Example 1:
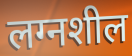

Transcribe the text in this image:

लग्नशील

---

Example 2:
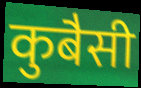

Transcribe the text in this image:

कुबैसी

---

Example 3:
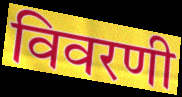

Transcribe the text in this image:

विवरणी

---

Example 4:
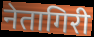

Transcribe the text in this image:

नेतागिरी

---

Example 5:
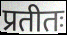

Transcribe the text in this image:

प्रतीतः